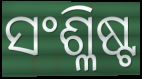
ସଂଶ୍ଳିଷ୍ଟ